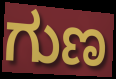
ಗುಣ